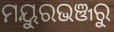
ମୟୁରଭଞ୍ଜରୁ